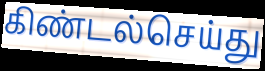
கிண்டல்செய்து